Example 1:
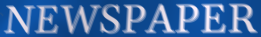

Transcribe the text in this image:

NEWSPAPER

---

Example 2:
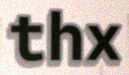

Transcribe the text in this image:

thx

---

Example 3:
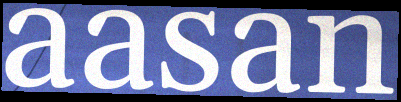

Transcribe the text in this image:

aasan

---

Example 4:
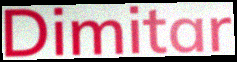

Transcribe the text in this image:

Dimitar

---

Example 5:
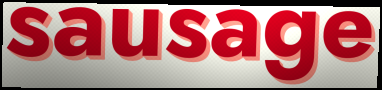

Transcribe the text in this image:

sausage